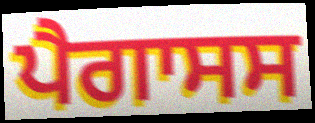
ਪੈਗਾਸਸ